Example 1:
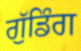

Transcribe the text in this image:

ਗੁੱਡਿੰਗ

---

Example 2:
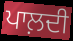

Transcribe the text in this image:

ਪਾਲ਼ਦੀ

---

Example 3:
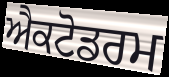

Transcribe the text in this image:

ਐਕਟੋਡਰਮ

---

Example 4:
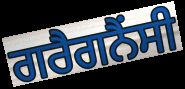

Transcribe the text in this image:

ਗਰੈਗਨੈਂਸੀ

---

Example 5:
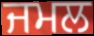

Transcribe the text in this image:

ਜਮਲ